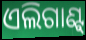
ଏଲିଗାଣ୍ଟ୍